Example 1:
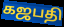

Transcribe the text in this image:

கஜபதி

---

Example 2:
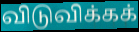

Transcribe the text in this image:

விடுவிக்கக்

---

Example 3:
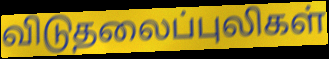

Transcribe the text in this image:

விடுதலைப்புலிகள்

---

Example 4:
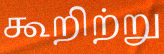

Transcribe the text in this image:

கூறிற்று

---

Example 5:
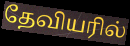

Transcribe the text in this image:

தேவியரில்